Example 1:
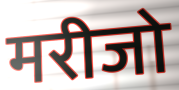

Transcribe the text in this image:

मरीजो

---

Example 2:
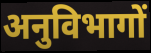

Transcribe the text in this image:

अनुविभागों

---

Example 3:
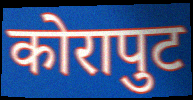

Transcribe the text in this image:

कोरापुट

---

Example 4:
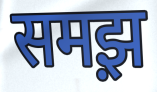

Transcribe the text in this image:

समझ़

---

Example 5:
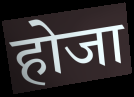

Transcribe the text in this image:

होजा